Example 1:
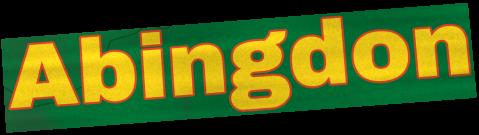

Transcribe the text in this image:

Abingdon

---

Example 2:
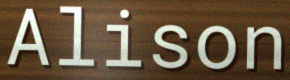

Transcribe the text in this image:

Alison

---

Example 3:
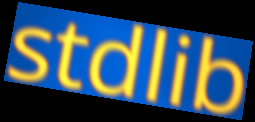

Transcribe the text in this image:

stdlib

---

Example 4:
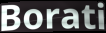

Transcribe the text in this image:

Borati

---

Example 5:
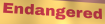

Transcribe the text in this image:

Endangered